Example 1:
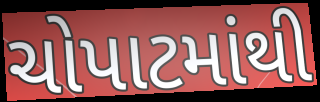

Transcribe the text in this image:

ચોપાટમાંથી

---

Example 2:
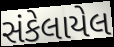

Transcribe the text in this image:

સંકેલાયેલ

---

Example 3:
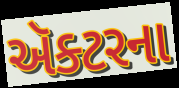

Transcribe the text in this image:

ઍક્ટરના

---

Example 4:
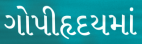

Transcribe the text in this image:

ગોપીહૃદયમાં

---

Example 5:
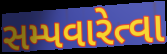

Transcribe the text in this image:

સમ્પવારેત્વા